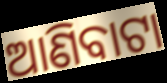
ଆଣିବାଟା